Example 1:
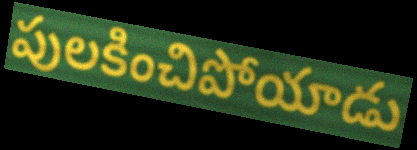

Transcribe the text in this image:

పులకించిపోయాడు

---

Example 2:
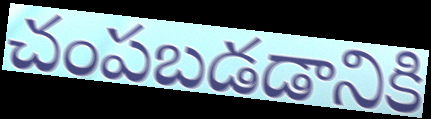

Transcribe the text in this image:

చంపబడడానికి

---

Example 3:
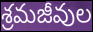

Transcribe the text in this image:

శ్రమజీవుల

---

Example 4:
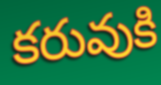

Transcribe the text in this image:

కరువుకి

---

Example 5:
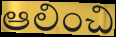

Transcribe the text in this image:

ఆలించి